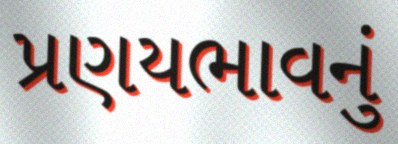
પ્રણયભાવનું